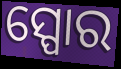
ସ୍ପୋର